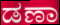
ಡಣಾ